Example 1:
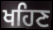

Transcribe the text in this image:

ਖਹਿਣ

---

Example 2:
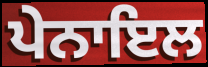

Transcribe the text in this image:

ਪੇਨਾਇਲ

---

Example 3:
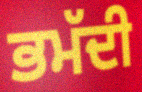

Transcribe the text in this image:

ਭਮੱਦੀ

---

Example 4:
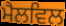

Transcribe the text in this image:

ਮੈਲਵਿਲ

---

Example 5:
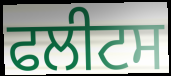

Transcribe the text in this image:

ਫਲੀਟਸ